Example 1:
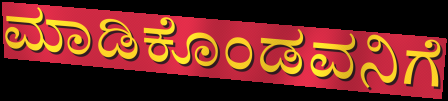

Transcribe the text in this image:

ಮಾಡಿಕೊಂಡವನಿಗೆ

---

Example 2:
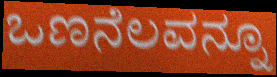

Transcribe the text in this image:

ಒಣನೆಲವನ್ನೂ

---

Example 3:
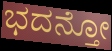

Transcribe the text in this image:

ಭದನ್ತೋ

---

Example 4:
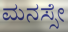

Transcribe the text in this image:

ಮನಸ್ಸೇ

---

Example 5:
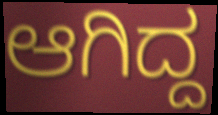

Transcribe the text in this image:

ಆಗಿದ್ದ